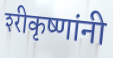
श्रीकृष्णांनी